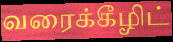
வரைக்கீழிட்